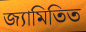
জ্যামিতিত